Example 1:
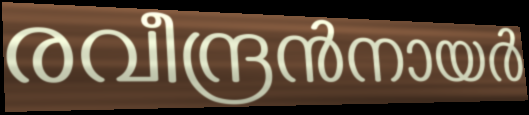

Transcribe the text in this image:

രവീന്ദ്രൻനായർ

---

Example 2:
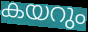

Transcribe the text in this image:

കയറും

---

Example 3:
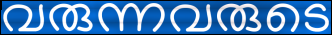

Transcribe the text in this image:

വരുന്നവരുടെ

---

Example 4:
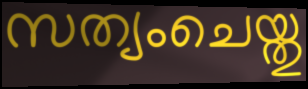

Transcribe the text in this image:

സത്യംചെയ്തു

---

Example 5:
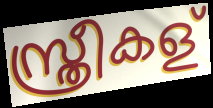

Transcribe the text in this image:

സ്ത്രീകള്